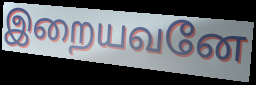
இறையவனே